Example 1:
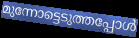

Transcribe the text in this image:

മുന്നോട്ടെടുത്തപ്പോൾ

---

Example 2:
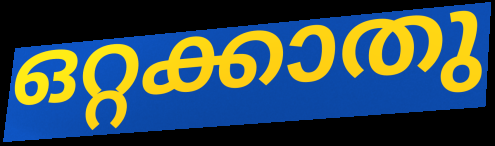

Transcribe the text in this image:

ഒറ്റക്കാതു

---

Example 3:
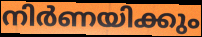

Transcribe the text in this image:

നിർണയിക്കും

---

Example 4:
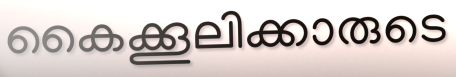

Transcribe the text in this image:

കൈക്കൂലിക്കാരുടെ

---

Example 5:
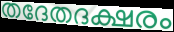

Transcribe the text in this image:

തദേതദക്ഷരം